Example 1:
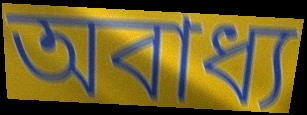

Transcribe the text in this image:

অবাধ্য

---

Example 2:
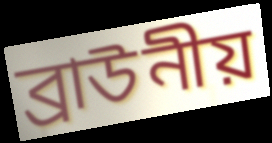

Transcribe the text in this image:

ব্ৰাউনীয়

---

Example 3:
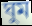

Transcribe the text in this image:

ঘুম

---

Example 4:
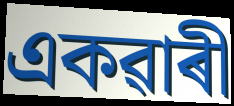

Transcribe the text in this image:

একৱাৰী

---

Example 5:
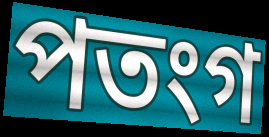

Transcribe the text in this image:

পতংগ